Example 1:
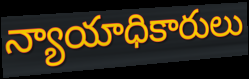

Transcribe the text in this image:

న్యాయాధికారులు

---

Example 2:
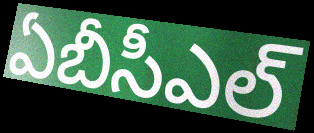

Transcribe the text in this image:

ఏబీసీఎల్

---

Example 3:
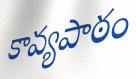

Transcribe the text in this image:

కావ్యపాఠం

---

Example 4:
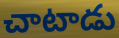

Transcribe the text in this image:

చాటాడు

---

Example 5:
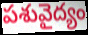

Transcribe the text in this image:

పశువైద్యం